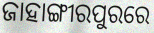
ଜାହାଙ୍ଗୀରପୁରରେ